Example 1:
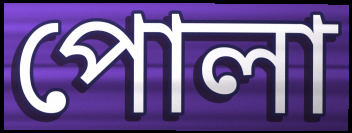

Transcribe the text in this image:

পোলা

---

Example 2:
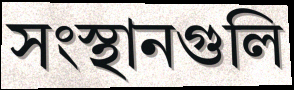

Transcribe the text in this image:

সংস্থানগুলি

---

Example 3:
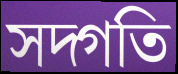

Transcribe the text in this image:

সদ্গতি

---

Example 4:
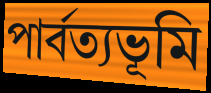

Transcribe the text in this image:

পার্বত্যভূমি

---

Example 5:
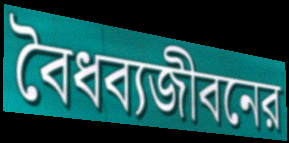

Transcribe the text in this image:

বৈধব্যজীবনের